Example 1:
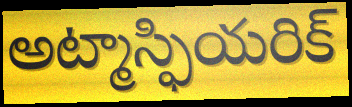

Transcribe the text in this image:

అట్మాస్ఫియరిక్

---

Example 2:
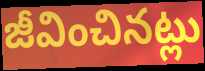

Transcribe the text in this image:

జీవించినట్లు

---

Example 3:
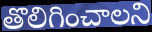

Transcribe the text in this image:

తొలిగించాలని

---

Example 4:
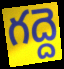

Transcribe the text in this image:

గద్దె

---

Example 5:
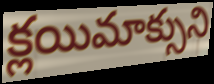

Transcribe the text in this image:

క్లయిమాక్సుని